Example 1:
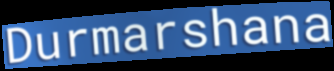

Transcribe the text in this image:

Durmarshana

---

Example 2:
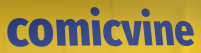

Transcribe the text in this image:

comicvine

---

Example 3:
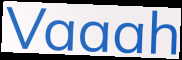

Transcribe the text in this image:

Vaaah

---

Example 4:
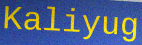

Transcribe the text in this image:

Kaliyug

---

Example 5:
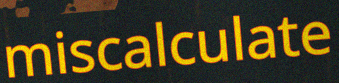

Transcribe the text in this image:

miscalculate